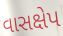
વાસક્ષેપ